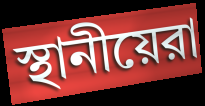
স্থানীয়েরা